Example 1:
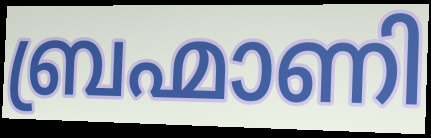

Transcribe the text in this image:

ബ്രഹ്മാണി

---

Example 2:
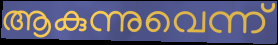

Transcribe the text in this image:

ആകുന്നുവെന്ന്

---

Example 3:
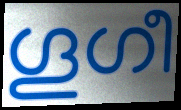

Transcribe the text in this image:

ഗൂഗീ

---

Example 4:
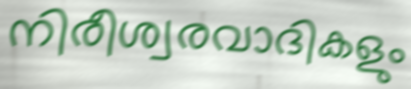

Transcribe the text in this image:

നിരീശ്വരവാദികളും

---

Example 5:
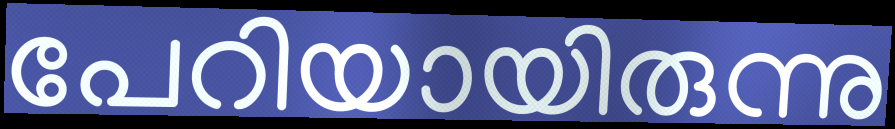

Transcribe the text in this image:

പേറിയായിരുന്നു